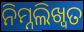
ନିମ୍ନଲିଖ୍ବତ